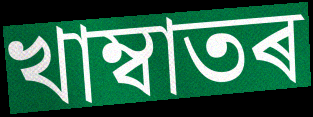
খাম্বাতৰ